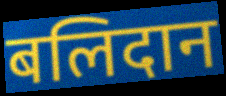
बलिदान